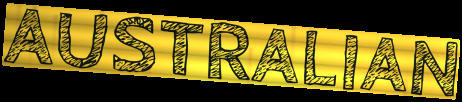
AUSTRALIAN